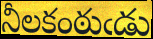
నీలకంఠుఁడు